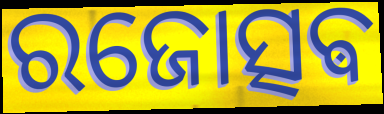
ରଜୋତ୍ସଵ